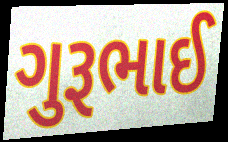
ગુરૂભાઈ